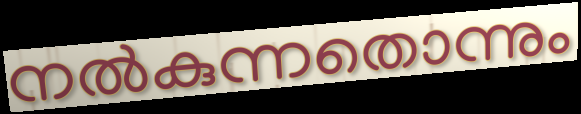
നൽകുന്നതൊന്നും